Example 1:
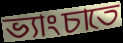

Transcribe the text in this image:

ভ্যাংচাতে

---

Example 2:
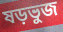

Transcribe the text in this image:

ষড়ভুজ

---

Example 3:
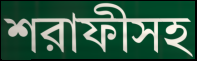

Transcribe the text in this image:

শরাফীসহ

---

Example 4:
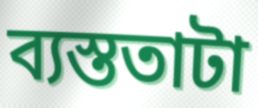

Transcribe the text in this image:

ব্যস্ততাটা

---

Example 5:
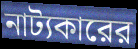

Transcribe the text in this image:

নাট্যকারের